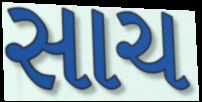
સાચ